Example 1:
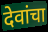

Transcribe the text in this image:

देवांचा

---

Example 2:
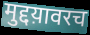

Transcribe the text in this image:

मुद्दय़ावरच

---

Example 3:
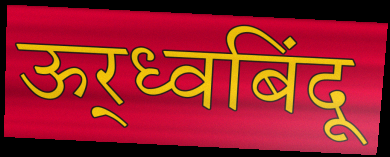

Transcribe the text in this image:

ऊर्ध्वबिंदू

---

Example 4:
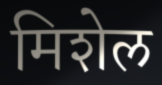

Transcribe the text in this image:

मिशेल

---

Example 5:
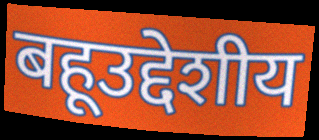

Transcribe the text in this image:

बहूउद्देशीय